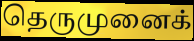
தெருமுனைக்